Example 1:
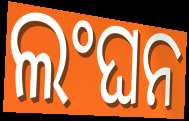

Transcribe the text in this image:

ଲଂଘନ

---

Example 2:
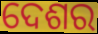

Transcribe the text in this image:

ଦେଶର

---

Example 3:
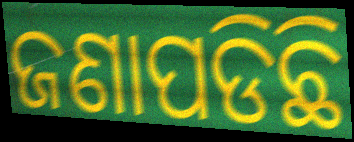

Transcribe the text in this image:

ଜଣାପଡିଛି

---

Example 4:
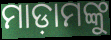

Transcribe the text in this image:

ମାଡ଼ାମଙ୍କୁ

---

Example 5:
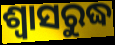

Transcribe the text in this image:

ଶ୍ୱାସରୁଦ୍ଧ